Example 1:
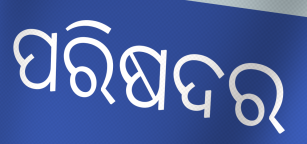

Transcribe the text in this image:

ପରିଷଦର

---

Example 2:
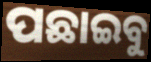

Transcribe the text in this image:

ପଛାଇବୁ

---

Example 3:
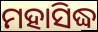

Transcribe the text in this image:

ମହାସିଦ୍ଧ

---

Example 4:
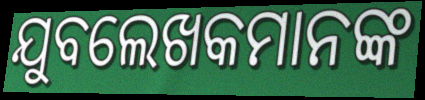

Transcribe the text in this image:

ଯୁବଲେଖକମାନଙ୍କ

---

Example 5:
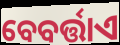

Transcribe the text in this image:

ବେବର୍ତ୍ତାଏ